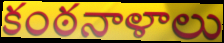
కంఠనాళాలు